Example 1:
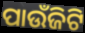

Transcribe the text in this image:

ପାଉଁଜିଟି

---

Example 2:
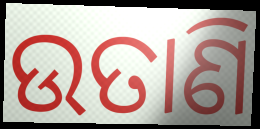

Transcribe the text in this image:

ଉତାଣି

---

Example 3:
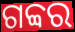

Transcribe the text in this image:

ଗବ୍ବର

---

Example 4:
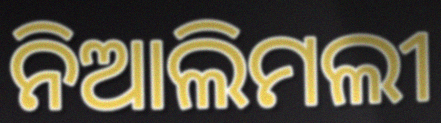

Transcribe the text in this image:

ନିଆଲିମଲୀ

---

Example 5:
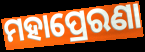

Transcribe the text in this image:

ମହାପ୍ରେରଣା